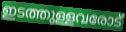
ഇടത്തുള്ളവരോട്